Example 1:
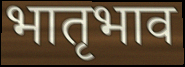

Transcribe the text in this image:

भातृभाव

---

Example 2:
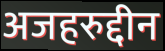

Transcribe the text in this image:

अजहरुद्दीन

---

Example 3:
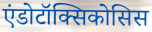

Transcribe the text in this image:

एंडोटॉक्सिकोसिस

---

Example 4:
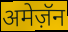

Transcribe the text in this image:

अमेज़ॅन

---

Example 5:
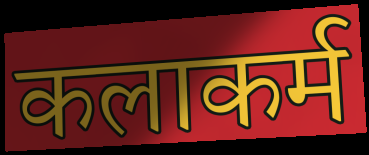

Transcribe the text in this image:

कलाकर्म